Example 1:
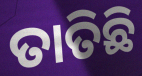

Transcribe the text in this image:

ତାତିଛି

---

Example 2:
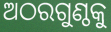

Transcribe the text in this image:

ଅଠରଗୁଣ୍ଠକୁ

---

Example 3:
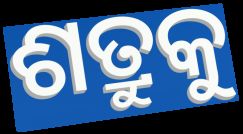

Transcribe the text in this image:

ଶତ୍ରୁକୁ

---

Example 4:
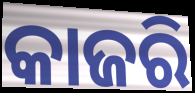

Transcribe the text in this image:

କାଜରି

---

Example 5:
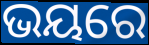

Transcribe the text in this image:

ଭୟରେ